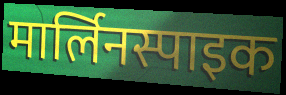
मार्लिनस्पाइक